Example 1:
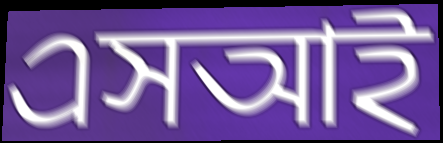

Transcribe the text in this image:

এসআই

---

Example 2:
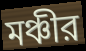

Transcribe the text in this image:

মঞ্চীর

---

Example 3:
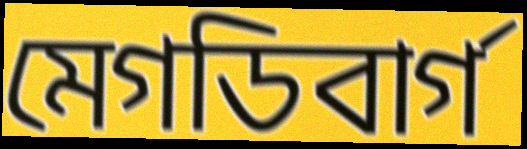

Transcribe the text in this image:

মেগডিবার্গ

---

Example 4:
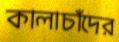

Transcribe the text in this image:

কালাচাঁদের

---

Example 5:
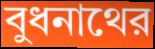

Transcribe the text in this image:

বুধনাথের